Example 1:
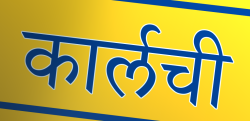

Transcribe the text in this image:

कार्लची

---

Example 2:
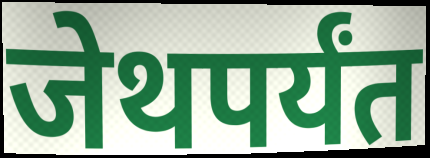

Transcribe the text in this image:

जेथपर्यंत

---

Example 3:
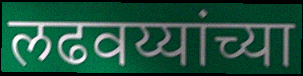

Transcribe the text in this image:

लढवय्यांच्या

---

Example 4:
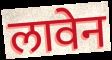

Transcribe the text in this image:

लावेन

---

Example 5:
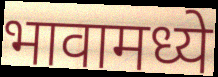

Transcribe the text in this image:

भावामध्ये